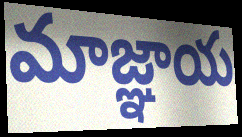
మాజ్ఞాయ